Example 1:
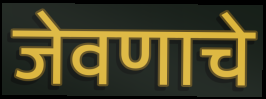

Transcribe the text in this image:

जेवणाचे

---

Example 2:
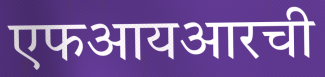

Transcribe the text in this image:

एफआयआरची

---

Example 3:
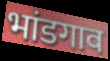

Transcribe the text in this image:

भांडगाव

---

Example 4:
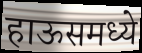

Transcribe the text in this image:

हाऊसमध्ये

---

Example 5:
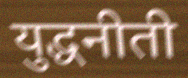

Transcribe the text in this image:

युद्धनीती